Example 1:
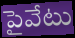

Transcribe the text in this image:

పైవేటు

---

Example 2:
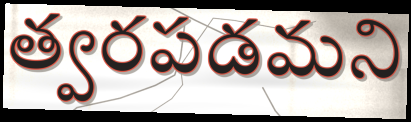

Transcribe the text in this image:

త్వరపడమని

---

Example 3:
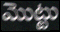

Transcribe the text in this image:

మొట్టు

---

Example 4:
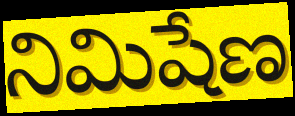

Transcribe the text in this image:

నిమిషేణ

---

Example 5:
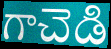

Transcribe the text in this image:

గాచెడి